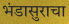
भंडासुराचा